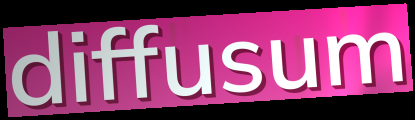
diffusum